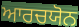
ਆਰਚਯੋਨ